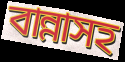
বান্নাসহ